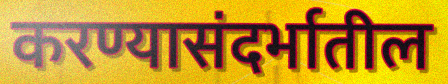
करण्यासंदर्भातील